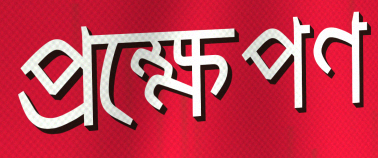
প্ৰক্ষেপণ